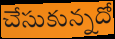
చేసుకున్నదో